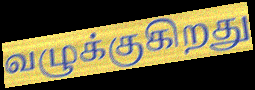
வழுக்குகிறது